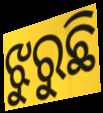
ଝୁରୁଛି